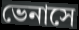
ভেনাসে